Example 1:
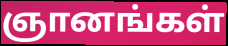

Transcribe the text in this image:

ஞானங்கள்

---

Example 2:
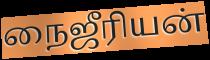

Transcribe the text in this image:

நைஜீரியன்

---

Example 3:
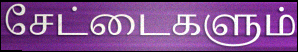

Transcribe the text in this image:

சேட்டைகளும்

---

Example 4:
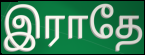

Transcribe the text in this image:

இராதே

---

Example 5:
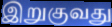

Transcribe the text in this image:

இறுகுவது